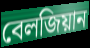
বেলজিয়ান